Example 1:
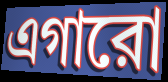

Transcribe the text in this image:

এগারো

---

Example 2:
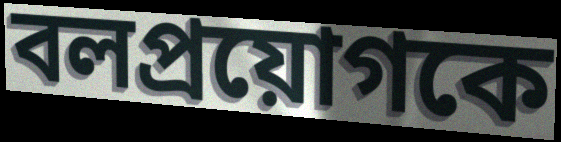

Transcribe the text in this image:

বলপ্রয়োগকে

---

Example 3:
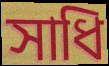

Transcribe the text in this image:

সাধি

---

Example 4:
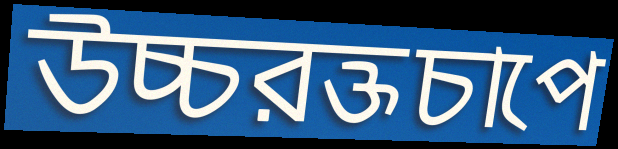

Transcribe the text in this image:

উচ্চরক্তচাপে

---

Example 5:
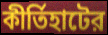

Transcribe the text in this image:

কীর্তিহাটের